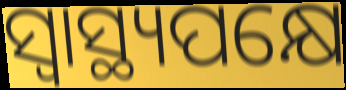
ସ୍ଵାସ୍ଥ୍ୟପକ୍ଷେ